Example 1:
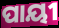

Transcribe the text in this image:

ପାୟୀ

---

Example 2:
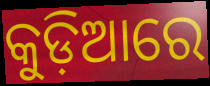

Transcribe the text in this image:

କୁଡ଼ିଆରେ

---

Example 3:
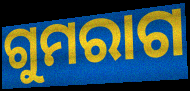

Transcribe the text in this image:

ଗୁମରାଗ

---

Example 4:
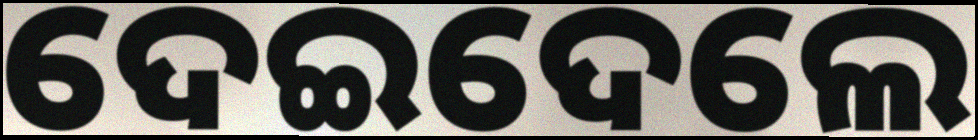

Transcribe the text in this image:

ଦେଇଦେଲେ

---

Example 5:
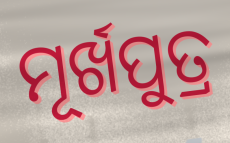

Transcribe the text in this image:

ମୂର୍ଖପୁତ୍ର